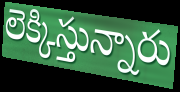
లెక్కిస్తున్నారు